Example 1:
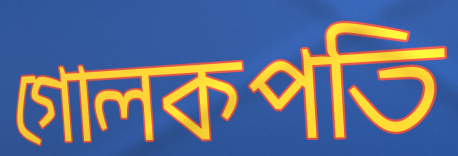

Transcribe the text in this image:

গোলকপতি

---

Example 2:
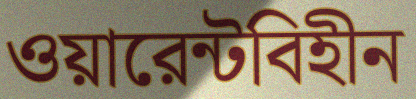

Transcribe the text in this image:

ওয়ারেন্টবিহীন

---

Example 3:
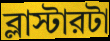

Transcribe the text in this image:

ব্লাস্টারটা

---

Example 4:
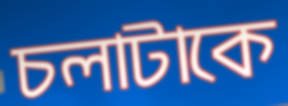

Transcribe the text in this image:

চলাটাকে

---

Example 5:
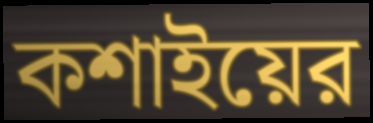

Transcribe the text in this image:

কশাইয়ের